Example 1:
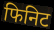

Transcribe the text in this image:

फिनिट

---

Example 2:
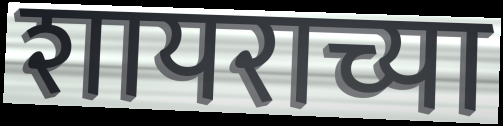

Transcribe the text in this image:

शायराच्या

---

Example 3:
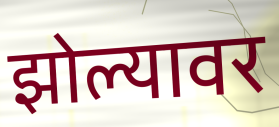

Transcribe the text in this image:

झोल्यावर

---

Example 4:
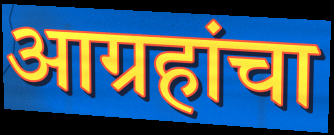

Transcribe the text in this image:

आग्रहांचा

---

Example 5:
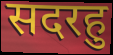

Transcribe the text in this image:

सदरहु